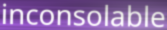
inconsolable